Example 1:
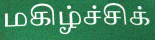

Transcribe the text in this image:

மகிழ்ச்சிக்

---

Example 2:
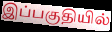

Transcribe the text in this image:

இப்பகுதியில்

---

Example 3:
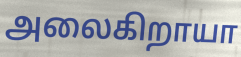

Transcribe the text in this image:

அலைகிறாயா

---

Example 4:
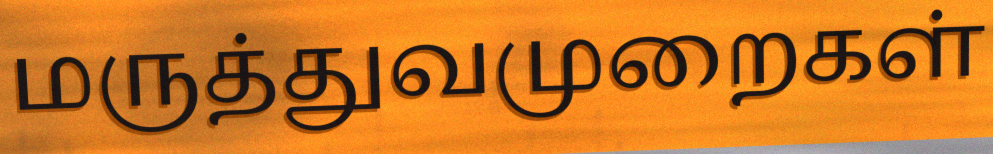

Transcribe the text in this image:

மருத்துவமுறைகள்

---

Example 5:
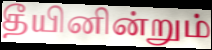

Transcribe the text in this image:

தீயினின்றும்